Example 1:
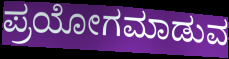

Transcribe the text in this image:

ಪ್ರಯೋಗಮಾಡುವ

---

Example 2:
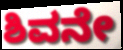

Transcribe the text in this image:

ಶಿವನೇ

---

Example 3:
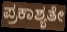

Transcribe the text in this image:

ಪ್ರಕಾಶ್ಯತೇ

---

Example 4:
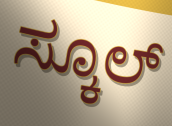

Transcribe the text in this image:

ಸ್ಕೂಲ್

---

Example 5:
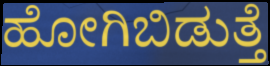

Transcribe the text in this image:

ಹೋಗಿಬಿಡುತ್ತೆ